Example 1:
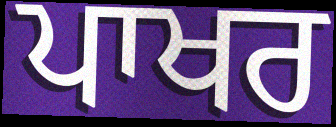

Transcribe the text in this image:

ਪਾਖਰ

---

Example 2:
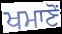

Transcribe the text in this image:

ਖਮਾਣੋਂ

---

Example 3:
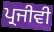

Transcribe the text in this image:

ਪ੍ਰਜੀਵੀ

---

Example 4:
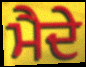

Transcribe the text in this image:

ਮੈਦੇ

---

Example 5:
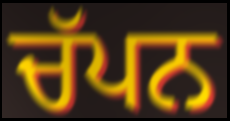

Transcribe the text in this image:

ਚੱਪਨ